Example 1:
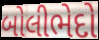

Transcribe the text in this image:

બોલીભેદો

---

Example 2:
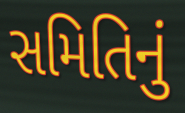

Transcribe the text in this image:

સમિતિનું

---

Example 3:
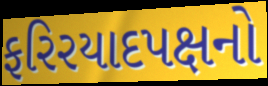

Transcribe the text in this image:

ફરિરયાદપક્ષનો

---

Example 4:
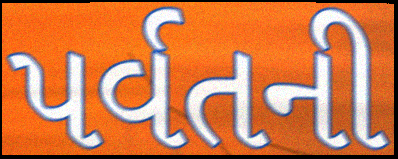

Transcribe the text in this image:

પર્વતની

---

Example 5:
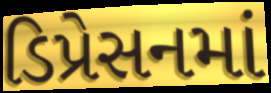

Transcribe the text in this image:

ડિપ્રેસનમાં